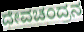
ದೇವಚಂದ್ರನ